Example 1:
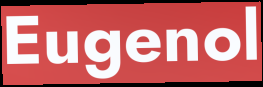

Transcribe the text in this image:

Eugenol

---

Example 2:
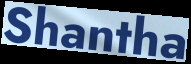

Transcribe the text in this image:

Shantha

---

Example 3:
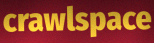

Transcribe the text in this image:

crawlspace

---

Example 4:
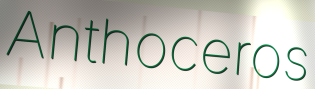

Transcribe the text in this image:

Anthoceros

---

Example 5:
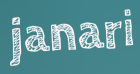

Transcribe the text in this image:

janari